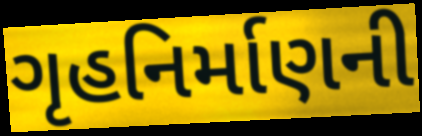
ગૃહનિર્માણની